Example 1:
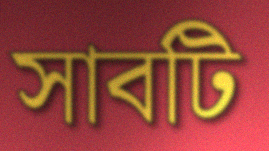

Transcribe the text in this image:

সাবটি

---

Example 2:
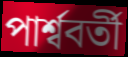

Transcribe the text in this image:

পাৰ্শ্ববৰ্তী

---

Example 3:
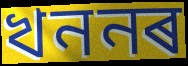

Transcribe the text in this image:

খননৰ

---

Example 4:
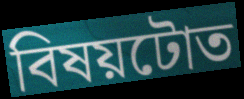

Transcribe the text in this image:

বিষয়টোত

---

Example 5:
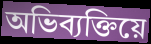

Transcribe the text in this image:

অভিব্যক্তিয়ে